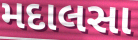
મદાલસા